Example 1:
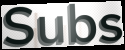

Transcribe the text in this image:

Subs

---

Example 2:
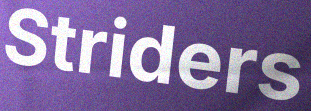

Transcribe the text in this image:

Striders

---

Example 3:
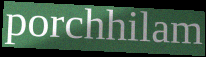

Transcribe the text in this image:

porchhilam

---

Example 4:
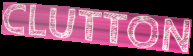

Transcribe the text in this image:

CLUTTON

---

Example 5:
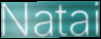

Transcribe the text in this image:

Natai